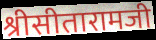
श्रीसीतारामजी